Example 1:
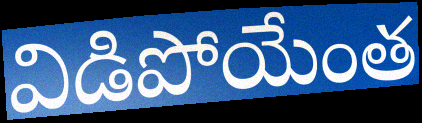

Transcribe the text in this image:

విడిపోయేంత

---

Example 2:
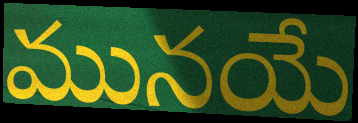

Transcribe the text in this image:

మునయే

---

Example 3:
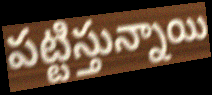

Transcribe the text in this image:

పట్టిస్తున్నాయి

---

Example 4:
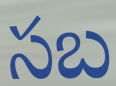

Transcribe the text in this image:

సబ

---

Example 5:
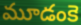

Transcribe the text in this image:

మూడంకె